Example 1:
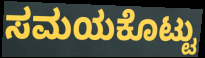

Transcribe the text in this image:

ಸಮಯಕೊಟ್ಟು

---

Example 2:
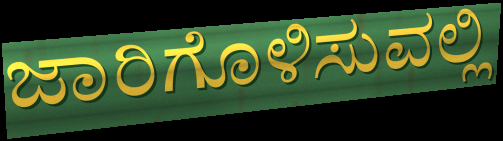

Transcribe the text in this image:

ಜಾರಿಗೊಳಿಸುವಲ್ಲಿ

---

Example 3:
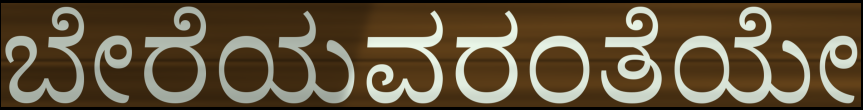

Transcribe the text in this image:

ಬೇರೆಯವರಂತೆಯೇ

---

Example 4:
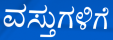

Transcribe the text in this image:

ವಸ್ತುಗಳಿಗೆ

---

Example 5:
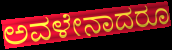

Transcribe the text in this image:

ಅವಳೇನಾದರೂ